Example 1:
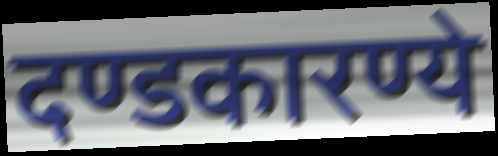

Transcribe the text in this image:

दण्डकारण्ये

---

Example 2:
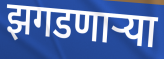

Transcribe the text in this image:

झगडणाऱ्या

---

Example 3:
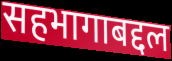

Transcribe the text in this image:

सहभागाबद्दल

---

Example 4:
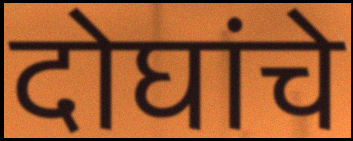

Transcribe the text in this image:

दोघांचे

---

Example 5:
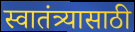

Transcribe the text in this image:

स्वातंत्र्यासाठी